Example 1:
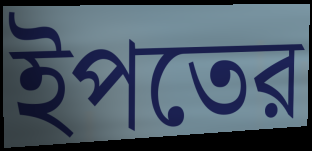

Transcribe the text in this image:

ইপতের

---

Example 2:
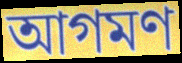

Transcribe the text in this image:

আগমণ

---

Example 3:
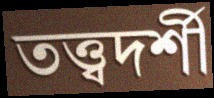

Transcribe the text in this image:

তত্ত্বদর্শী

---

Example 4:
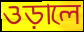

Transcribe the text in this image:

ওড়ালে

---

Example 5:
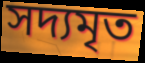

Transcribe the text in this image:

সদ্যমৃত